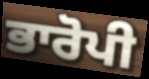
ਭਾਰੋਪੀ